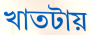
খাতটায়